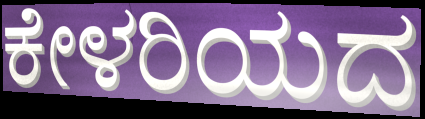
ಕೇಳರಿಯದ